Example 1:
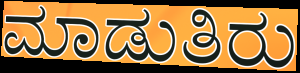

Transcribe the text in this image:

ಮಾಡುತಿರು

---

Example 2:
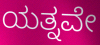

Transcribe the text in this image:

ಯತ್ನವೇ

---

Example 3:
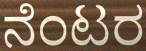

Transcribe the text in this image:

ನೆಂಟರ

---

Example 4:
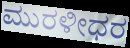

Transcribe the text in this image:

ಮುರಳೀಧರ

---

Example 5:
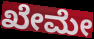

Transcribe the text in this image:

ಖೇಮೇ